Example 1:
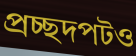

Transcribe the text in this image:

প্রচ্ছদপটও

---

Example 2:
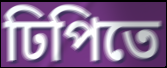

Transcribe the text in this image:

ঢিপিতে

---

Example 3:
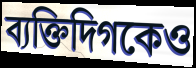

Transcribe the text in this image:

ব্যক্তিদিগকেও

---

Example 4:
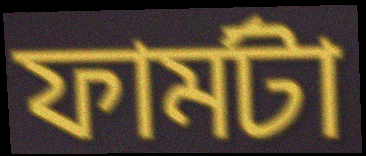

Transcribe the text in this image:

ফার্মটা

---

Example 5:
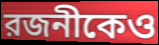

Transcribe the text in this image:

রজনীকেও